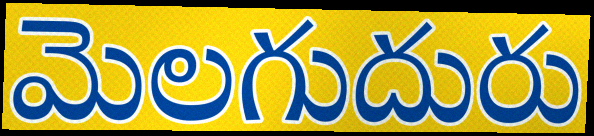
మెలగుదురు